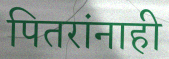
पितरांनाही